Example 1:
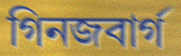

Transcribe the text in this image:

গিনজবার্গ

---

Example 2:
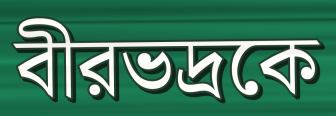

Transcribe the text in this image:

বীরভদ্রকে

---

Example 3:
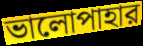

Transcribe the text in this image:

ভালোপাহার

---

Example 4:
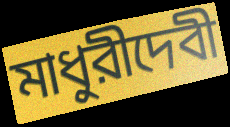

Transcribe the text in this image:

মাধুরীদেবী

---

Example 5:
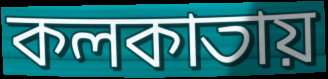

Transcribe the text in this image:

কলকাতায়